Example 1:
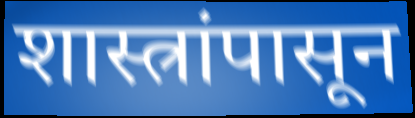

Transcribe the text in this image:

शास्त्रांपासून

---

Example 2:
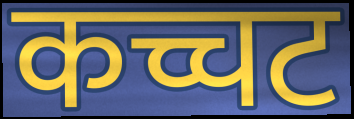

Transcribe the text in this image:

कच्चट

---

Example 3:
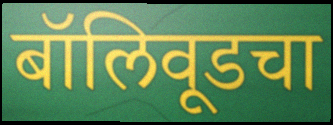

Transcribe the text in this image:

बॉलिवूडचा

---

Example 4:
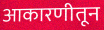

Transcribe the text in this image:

आकारणीतून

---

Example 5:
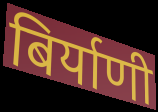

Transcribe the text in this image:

बिर्याणी